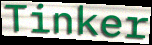
Tinker